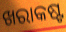
ଖରାକଷ୍ଟ